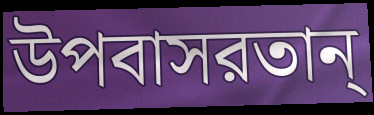
উপবাসরতান্